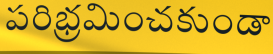
పరిభ్రమించకుండా